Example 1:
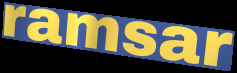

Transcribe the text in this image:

ramsar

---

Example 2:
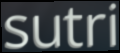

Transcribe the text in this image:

sutri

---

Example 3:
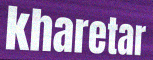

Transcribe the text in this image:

kharetar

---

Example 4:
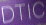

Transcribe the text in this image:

DTIC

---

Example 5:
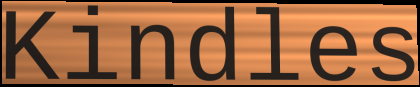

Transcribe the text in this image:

Kindles